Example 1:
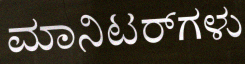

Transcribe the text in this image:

ಮಾನಿಟರ್‌ಗಳು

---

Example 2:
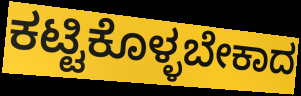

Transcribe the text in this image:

ಕಟ್ಟಿಕೊಳ್ಳಬೇಕಾದ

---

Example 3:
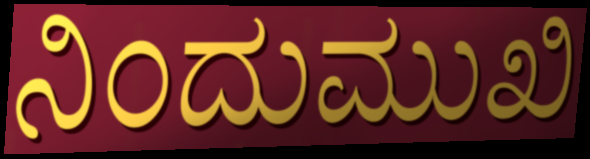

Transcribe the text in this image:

ನಿಂದುಮುಖಿ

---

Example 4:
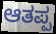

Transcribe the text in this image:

ಆತಪ್ಪ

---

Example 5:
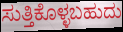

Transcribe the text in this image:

ಸುತ್ತಿಕೊಳ್ಳಬಹುದು